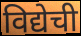
विद्येची